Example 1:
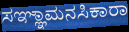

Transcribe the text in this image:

ಸಞ್ಞಾಮನಸಿಕಾರಾ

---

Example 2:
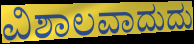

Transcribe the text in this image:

ವಿಶಾಲವಾದುದು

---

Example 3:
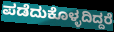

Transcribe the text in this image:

ಪಡೆದುಕೊಳ್ಳದಿದ್ದರೆ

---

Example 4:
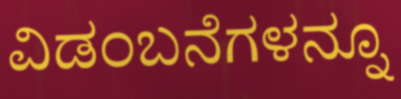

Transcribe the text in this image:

ವಿಡಂಬನೆಗಳನ್ನೂ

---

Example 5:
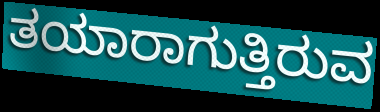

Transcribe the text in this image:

ತಯಾರಾಗುತ್ತಿರುವ